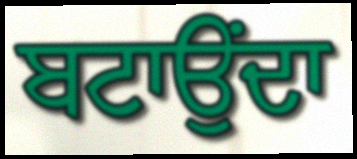
ਬਟਾਉਂਦਾ